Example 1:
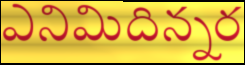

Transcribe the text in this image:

ఎనిమిదిన్నర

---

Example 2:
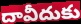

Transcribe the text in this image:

దావీదుకు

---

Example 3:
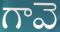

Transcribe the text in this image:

గావె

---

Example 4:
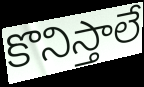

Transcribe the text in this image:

కొనిస్తాలే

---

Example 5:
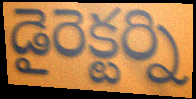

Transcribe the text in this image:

డైరెక్టర్ని